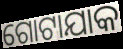
ଗୋଟାଯାକ